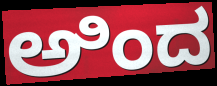
ಅಿಂದ